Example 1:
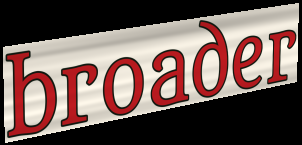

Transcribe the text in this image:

broader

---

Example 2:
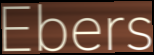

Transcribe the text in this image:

Ebers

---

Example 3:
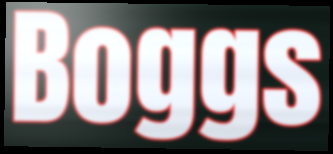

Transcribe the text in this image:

Boggs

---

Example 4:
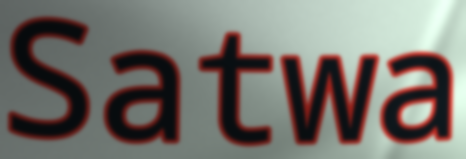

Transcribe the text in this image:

Satwa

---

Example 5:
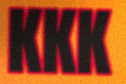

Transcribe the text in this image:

KKK